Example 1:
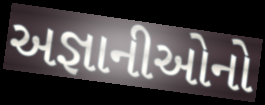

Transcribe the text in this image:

અજ્ઞાનીઓનો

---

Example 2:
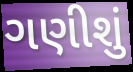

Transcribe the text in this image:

ગણીશું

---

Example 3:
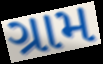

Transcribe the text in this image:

ગ્રામ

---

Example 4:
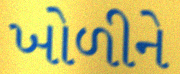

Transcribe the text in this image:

ખોળીને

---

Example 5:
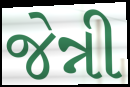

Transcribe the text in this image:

જેન્ની